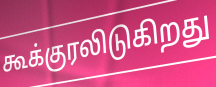
கூக்குரலிடுகிறது